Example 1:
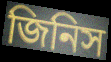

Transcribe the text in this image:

জিনিস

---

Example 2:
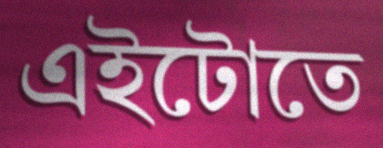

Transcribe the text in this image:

এইটোতে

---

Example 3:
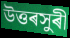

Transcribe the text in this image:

উত্তৰসুৰী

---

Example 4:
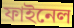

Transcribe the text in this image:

ফাইনেল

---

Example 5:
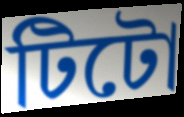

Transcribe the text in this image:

টিটো